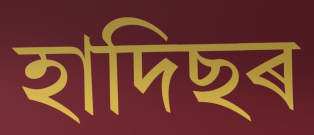
হাদিছৰ